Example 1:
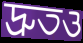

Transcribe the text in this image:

দ্রুতও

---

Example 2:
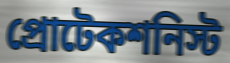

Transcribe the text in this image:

প্রোটেকশনিস্ট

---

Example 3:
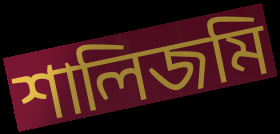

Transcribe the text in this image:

শালিজমি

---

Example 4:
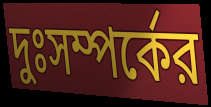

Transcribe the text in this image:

দুঃসম্পর্কের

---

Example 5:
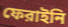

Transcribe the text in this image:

ফেরাইনি